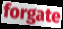
forgate